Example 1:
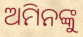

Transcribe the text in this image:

ଅମିନଙ୍କୁ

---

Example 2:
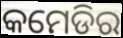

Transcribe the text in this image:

କମେଡିର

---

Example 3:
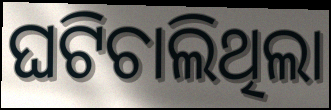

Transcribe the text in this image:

ଘଟିଚାଲିଥିଲା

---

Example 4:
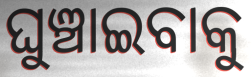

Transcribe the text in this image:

ଘୁଞ୍ଚାଇବାକୁ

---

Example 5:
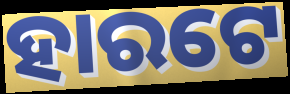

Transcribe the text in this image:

ହାରଟେ